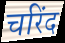
चरिंद